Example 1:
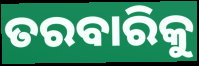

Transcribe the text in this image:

ତରବାରିକୁ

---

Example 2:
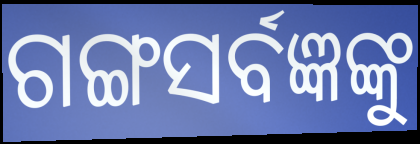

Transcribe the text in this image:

ଗଙ୍ଗସର୍ବଜ୍ଞଙ୍କୁ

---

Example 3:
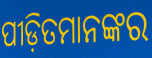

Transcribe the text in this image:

ପୀଡ଼ିତମାନଙ୍କର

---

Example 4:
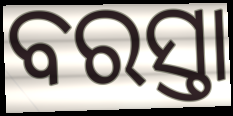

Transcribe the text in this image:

ବରସ୍ତା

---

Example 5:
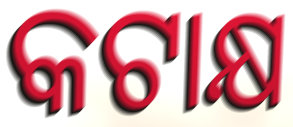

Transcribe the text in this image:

କଟାକ୍ଷ